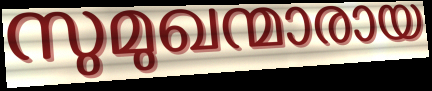
സുമുഖന്മാരായ